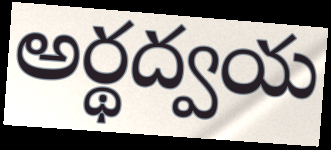
అర్థద్వయ